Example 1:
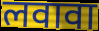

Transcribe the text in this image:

लवावा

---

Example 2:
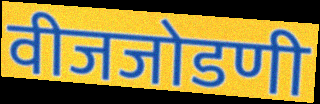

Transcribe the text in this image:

वीजजोडणी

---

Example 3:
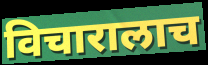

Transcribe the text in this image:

विचारालाच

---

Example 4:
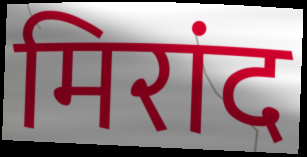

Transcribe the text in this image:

मिरांद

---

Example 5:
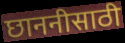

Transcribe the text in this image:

छाननीसाठी